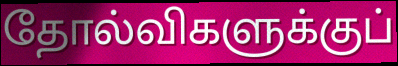
தோல்விகளுக்குப்